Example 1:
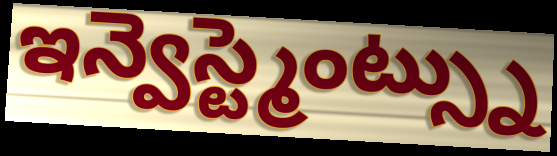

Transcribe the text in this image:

ఇన్వెస్ట్మెంట్స్ను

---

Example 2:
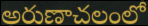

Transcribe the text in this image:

అరుణాచలంలో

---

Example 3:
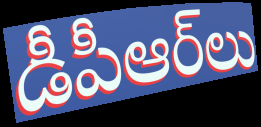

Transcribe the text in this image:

డీపీఆర్‌లు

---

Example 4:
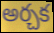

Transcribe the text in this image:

అర్చక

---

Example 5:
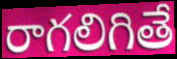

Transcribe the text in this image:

రాగలిగితే